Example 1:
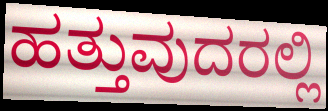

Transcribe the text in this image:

ಹತ್ತುವುದರಲ್ಲಿ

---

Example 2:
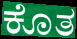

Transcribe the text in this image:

ಕೊತ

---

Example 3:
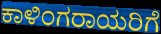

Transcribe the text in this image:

ಕಾಳಿಂಗರಾಯರಿಗೆ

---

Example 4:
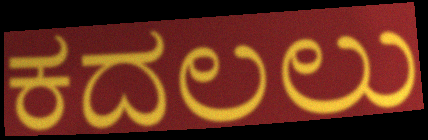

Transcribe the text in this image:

ಕದಲಲು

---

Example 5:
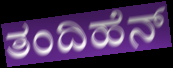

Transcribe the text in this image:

ತಂದಿಹೆನ್